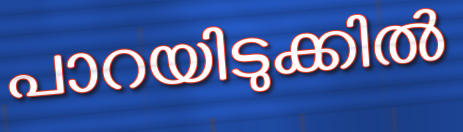
പാറയിടുക്കിൽ